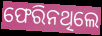
ଫେରିନଥିଲେ